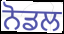
ਨੋਡਲ